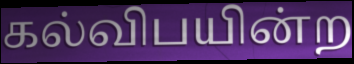
கல்விபயின்ற